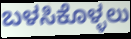
ಬಳಸಿಕೊಳ್ಳಲು